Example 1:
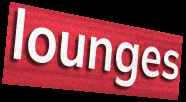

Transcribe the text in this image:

lounges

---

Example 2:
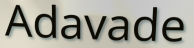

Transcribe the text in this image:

Adavade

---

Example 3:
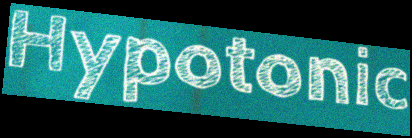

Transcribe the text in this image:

Hypotonic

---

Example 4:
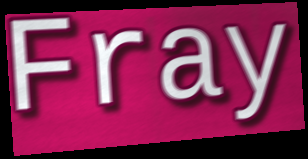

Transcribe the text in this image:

Fray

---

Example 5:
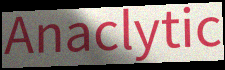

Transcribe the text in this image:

Anaclytic